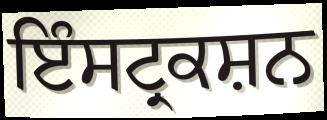
ਇੰਸਟ੍ਰਕਸ਼ਨ